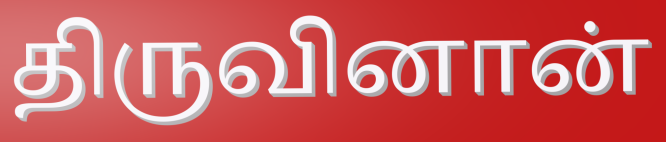
திருவினான்